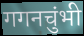
गगनचुंभी